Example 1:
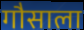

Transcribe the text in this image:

गौसाला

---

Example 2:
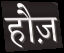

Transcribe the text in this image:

हौज़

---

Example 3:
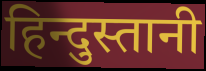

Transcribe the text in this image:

हिन्‍दुस्‍तानी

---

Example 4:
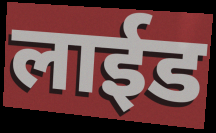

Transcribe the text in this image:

लाईड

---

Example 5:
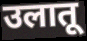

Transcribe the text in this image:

उलातू